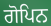
ਗੋਪਿਨ